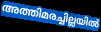
അത്തിമരച്ചില്ലയിൽ